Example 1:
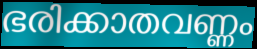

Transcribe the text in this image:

ഭരിക്കാതവണ്ണം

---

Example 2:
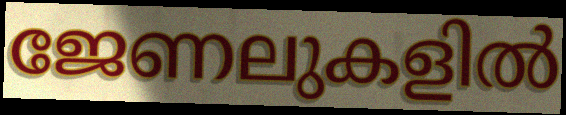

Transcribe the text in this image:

ജേണലുകളിൽ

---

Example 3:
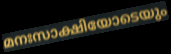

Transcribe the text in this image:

മനഃസാക്ഷിയോടെയും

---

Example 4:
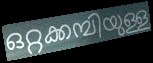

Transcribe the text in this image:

ഒറ്റക്കമ്പിയുള്ള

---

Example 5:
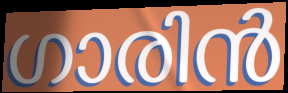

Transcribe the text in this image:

ഗാരിൻ